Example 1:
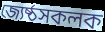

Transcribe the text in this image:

জ্যেষ্ঠসকলক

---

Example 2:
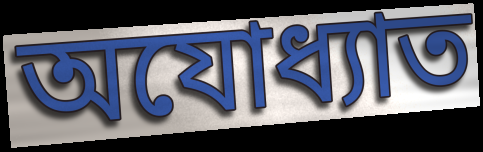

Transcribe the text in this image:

অযোধ্যাত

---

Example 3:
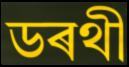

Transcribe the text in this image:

ডৰথী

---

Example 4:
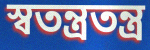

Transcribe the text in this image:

স্বতন্ত্ৰতন্ত্ৰ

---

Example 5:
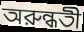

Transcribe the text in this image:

অৰুন্ধতী